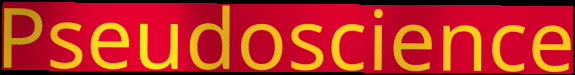
Pseudoscience